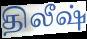
திலீஷ்